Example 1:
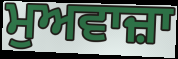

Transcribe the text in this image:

ਮੁਅਵਾਜ਼ਾ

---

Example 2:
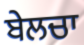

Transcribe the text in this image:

ਬੇਲਚਾ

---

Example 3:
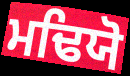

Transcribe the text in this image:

ਮਢਿਯੋ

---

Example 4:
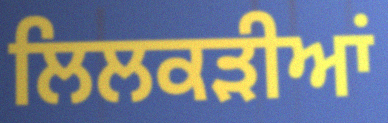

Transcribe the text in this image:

ਲਿਲਕੜੀਆਂ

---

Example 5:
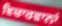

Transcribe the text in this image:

ਵਿਚਾਰਵਾਨਾਂ